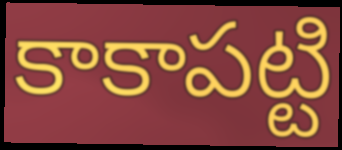
కాకాపట్టి